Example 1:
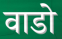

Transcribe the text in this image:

वाडो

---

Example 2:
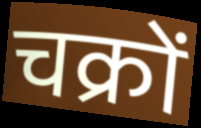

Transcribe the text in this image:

चक्रों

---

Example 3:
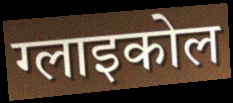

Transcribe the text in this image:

ग्लाइकोल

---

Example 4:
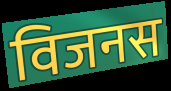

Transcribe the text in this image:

विजनस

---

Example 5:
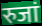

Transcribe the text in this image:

रुजां